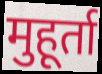
मुहूर्ता